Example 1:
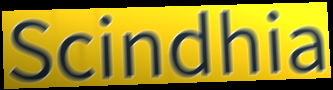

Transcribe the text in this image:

Scindhia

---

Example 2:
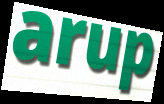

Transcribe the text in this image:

arup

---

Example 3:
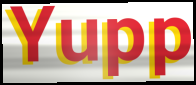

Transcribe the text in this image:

Yupp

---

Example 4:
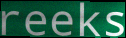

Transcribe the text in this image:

reeks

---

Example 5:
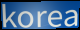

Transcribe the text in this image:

korea